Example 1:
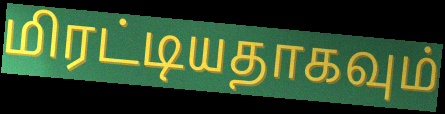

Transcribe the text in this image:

மிரட்டியதாகவும்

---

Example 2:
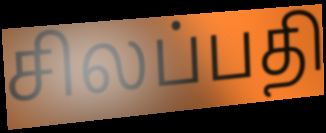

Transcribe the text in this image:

சிலப்பதி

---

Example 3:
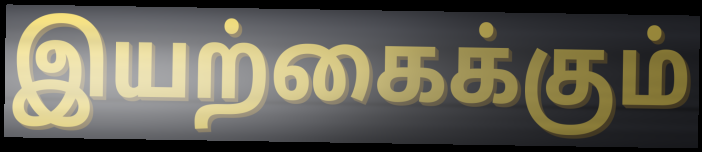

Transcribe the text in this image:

இயற்கைக்கும்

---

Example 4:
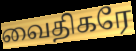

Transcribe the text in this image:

வைதிகரே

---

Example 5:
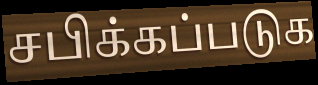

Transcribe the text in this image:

சபிக்கப்படுக